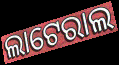
ଲାଟେରାଲ